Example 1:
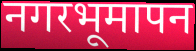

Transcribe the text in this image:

नगरभूमापन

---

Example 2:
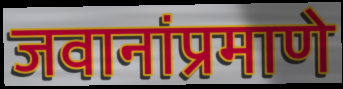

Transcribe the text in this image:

जवानांप्रमाणे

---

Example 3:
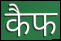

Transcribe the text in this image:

कैफ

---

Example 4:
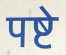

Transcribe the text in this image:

पष्टे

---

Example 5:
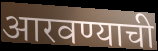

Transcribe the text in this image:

आरवण्याची